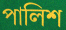
পালিশ